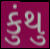
કુંથુ